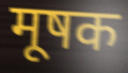
मूषक